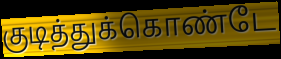
குடித்துக்கொண்டே